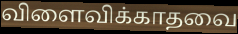
விளைவிக்காதவை